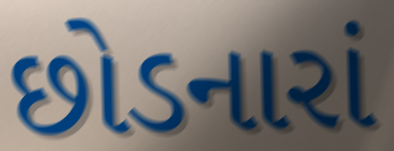
છોડનારાં